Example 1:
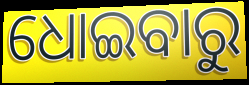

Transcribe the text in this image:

ଧୋଇବାରୁ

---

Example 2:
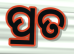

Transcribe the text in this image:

ପ୍ରତ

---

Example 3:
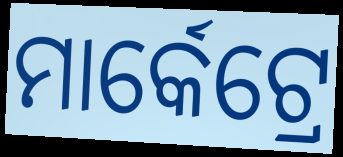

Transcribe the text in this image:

ମାର୍କେଟ୍ରେ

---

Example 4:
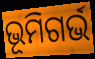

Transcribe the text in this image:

ଭୂମିଗର୍ଭ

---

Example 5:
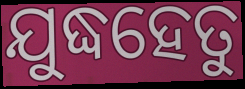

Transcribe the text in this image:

ଯୁଦ୍ଧହେତୁ